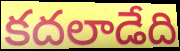
కదలాడేది